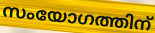
സംയോഗത്തിന്